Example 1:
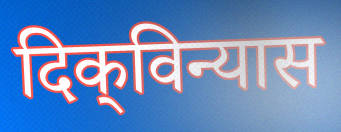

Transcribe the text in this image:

दिक्‌विन्यास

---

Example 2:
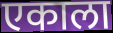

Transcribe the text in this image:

एकाला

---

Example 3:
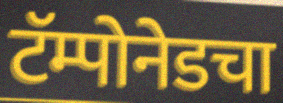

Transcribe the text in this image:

टॅम्पोनेडचा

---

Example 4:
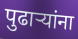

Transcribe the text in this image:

पुढाऱ्यांना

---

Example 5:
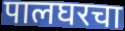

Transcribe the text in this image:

पालघरचा